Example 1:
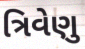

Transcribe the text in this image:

ત્રિવેણુ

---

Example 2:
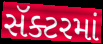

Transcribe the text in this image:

સૅક્ટરમાં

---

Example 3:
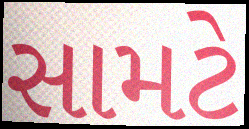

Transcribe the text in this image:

સામટે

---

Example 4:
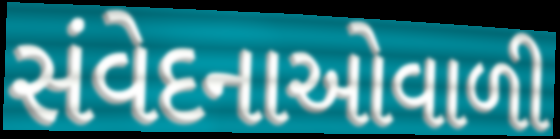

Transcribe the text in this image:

સંવેદનાઓવાળી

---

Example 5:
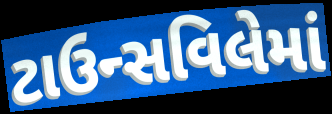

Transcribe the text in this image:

ટાઉન્સવિલેમાં